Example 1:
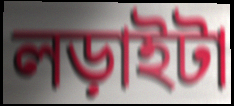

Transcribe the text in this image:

লড়াইটা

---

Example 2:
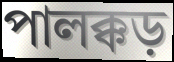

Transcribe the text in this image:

পালক্কড়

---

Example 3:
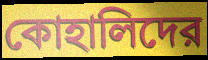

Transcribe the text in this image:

কোহালিদের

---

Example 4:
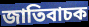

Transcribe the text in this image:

জাতিবাচক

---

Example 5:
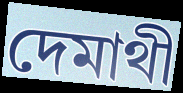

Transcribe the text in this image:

দেমাথী